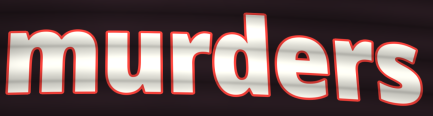
murders